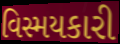
વિસ્મયકારી